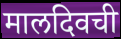
मालदिवची